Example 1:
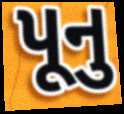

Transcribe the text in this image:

પૂનુ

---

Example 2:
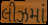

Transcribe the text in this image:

લીઝમાં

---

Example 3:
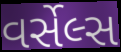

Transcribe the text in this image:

વર્સેલ્સ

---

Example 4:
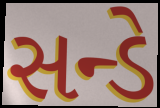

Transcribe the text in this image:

સન્ડે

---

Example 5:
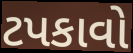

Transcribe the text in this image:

ટપકાવો